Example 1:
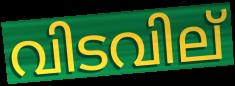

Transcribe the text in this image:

വിടവില്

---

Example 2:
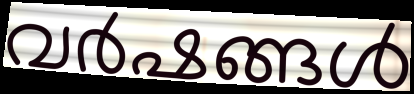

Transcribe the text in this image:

വർഷങ്ങൾ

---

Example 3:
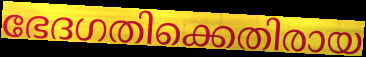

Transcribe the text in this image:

ഭേദഗതിക്കെതിരായ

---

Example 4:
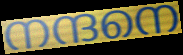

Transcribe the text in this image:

നന്ദനെ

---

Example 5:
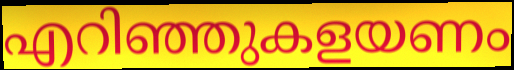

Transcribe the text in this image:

എറിഞ്ഞുകളയണം